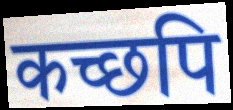
कच्छपि